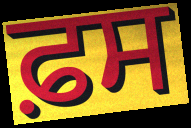
ਫ਼ਸ